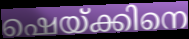
ഷെയ്ക്കിനെ